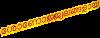
ശോണോജ്ജ്വലങ്ങളായ